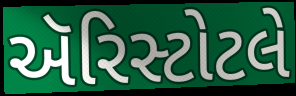
ઍરિસ્ટોટલે